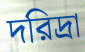
দরিদ্রা